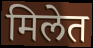
मिलेत